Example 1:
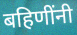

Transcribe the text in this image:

बहिणींनी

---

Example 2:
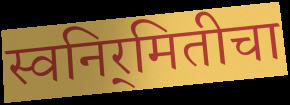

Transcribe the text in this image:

स्वनिर्मितीचा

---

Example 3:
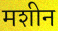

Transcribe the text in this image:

मशीन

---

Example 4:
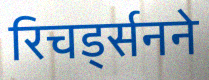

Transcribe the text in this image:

रिचर्ड्सनने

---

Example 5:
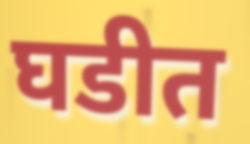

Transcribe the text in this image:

घडीत